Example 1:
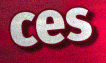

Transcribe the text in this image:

ces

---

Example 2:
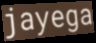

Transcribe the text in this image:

jayega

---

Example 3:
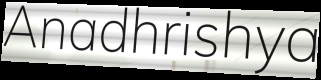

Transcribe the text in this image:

Anadhrishya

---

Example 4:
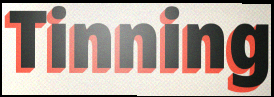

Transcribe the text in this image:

Tinning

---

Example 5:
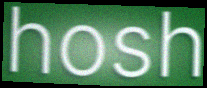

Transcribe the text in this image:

hosh